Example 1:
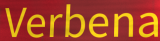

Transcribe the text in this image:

Verbena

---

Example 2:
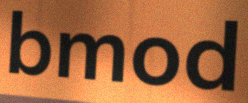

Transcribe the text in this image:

bmod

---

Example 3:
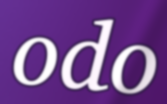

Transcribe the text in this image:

odo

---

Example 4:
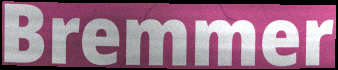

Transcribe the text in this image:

Bremmer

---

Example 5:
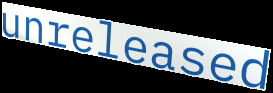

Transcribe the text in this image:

unreleased